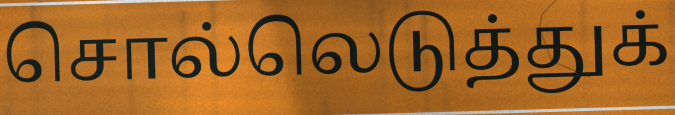
சொல்லெடுத்துக்